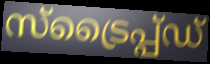
സ്ട്രൈപ്പ്ഡ്